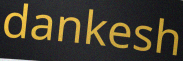
dankesh